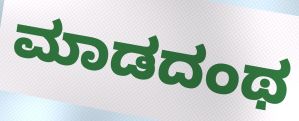
ಮಾಡದಂಥ